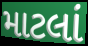
માટલાં